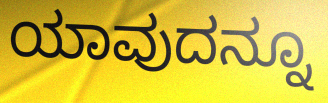
ಯಾವುದನ್ನೂ